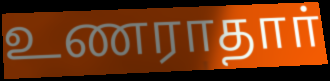
உணராதார்